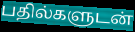
பதில்களுடன்